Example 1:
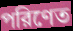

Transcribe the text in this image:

পরিণেত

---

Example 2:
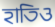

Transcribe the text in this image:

হাতিও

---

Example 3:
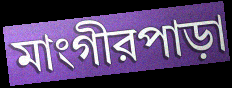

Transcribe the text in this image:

মাংগীরপাড়া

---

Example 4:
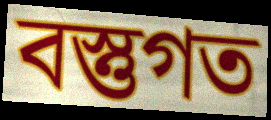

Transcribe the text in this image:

বস্তুগত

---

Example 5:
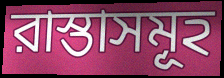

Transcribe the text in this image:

রাস্তাসমূহ